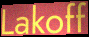
Lakoff